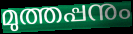
മുത്തപ്പനും